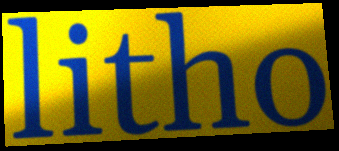
litho